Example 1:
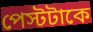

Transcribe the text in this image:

পেস্টটাকে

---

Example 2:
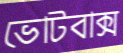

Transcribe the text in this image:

ভোটবাক্স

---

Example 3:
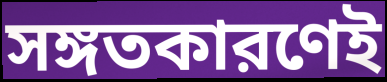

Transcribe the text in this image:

সঙ্গতকারণেই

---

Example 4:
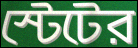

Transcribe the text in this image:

স্টেটের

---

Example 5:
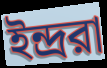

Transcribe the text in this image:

ইন্দ্ররা